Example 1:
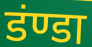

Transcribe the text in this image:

डंण्डा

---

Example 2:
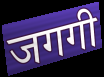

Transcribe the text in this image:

जगगी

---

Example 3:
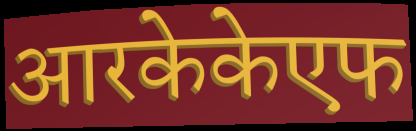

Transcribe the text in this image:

आरकेकेएफ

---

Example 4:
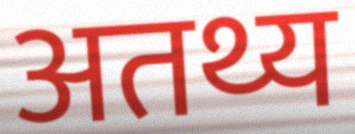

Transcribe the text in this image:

अतथ्य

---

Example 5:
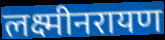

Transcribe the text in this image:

लक्ष्मीनरायण